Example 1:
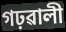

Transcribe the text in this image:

গঢ়ৱালী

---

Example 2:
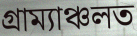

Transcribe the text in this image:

গ্ৰাম্যাঞ্চলত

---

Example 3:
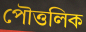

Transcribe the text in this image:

পৌত্তলিক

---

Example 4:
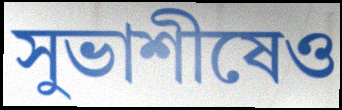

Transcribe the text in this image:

সুভাশীষেও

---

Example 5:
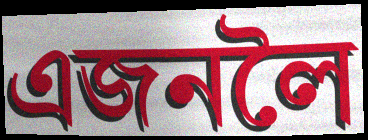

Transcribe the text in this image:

এজনলৈ